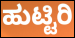
ಹುಟ್ಟಿರಿ